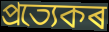
প্ৰত্যেকৰ